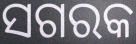
ସଗରକ